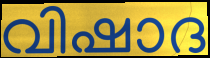
വിഷാദ